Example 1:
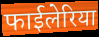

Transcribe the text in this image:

फाईलेरिया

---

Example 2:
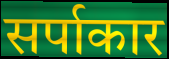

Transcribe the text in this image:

सर्पाकार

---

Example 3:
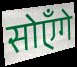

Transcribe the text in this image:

सोएँगे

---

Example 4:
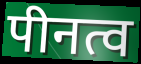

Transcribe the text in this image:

पीनत्व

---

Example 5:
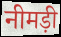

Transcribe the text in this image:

नीमड़ी